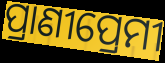
ପ୍ରାଣୀପ୍ରେମୀ